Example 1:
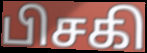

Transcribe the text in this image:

பிசகி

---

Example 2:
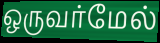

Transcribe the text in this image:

ஒருவர்மேல்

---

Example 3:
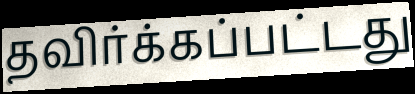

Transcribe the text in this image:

தவிர்க்கப்பட்டது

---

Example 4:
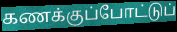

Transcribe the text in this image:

கணக்குப்போட்டுப்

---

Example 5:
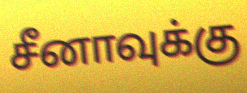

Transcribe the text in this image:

சீனாவுக்கு